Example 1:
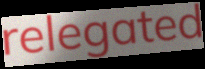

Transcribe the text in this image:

relegated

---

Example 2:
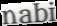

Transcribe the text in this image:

nabi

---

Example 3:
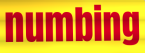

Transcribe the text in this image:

numbing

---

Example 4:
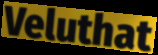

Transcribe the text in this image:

Veluthat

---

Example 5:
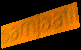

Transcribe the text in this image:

samjaatii